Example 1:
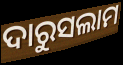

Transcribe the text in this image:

ଦାରୁସଲାମ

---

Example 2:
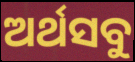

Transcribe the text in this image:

ଅର୍ଥସବୁ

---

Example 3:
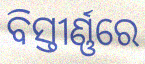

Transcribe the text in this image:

ବିସ୍ତୀର୍ଣ୍ଣରେ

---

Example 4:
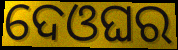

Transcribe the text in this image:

ଦେଓଘର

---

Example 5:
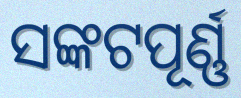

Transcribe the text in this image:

ସଙ୍କଟପୂର୍ଣ୍ଣ